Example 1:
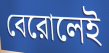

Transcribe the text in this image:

বেরোলেই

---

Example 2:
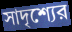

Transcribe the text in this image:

সাদৃশ্যের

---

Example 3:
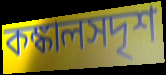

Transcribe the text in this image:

কঙ্কালসদৃশ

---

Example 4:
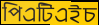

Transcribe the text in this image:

পিএটিএইচ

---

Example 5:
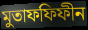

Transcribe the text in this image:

মুতাফফিফীন